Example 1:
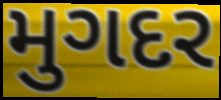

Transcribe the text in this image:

મુગદર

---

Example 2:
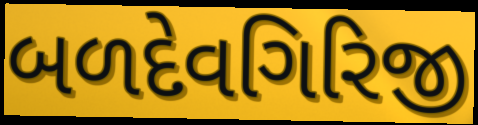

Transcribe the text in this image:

બળદેવગિરિજી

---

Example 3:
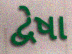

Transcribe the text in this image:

દ્વેષા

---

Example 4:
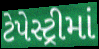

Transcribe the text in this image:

ટેપેસ્ટ્રીમાં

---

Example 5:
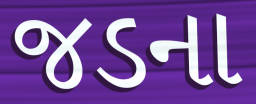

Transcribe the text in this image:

જડના